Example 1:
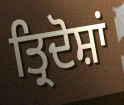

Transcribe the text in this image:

ਤ੍ਰਿਦੋਸ਼ਾਂ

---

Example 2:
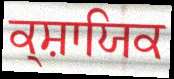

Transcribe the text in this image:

ਕ੍ਸ਼ਾਯਿਕ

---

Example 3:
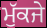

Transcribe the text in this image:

ਮੁੱਕਜੇ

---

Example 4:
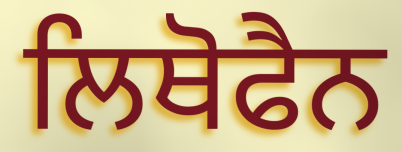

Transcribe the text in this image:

ਲਿਥੋਫੈਨ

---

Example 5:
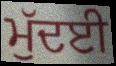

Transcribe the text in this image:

ਮੁੱਦਈ